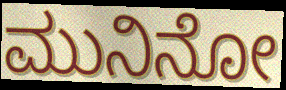
ಮುನಿನೋ